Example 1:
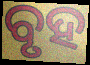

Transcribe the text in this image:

ବୃହ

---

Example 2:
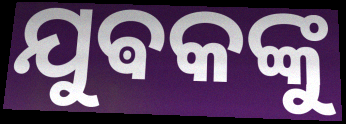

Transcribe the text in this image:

ଯୁଵକଙ୍କୁ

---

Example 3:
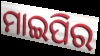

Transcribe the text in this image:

ମାଇପିର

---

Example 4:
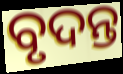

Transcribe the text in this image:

ବୃଦନ୍ତ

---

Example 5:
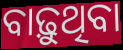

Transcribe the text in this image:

ବାଢ଼ୁଥିବା